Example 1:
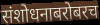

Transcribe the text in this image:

संशोधनाबरोबरच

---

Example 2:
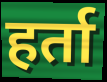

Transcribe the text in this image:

हर्ता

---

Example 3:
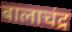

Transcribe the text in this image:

बालाचंद्र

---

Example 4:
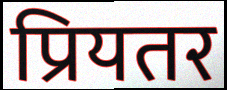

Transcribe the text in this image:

प्रियतर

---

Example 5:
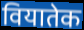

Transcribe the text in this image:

वियातेक